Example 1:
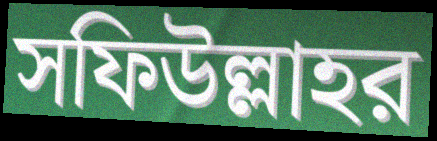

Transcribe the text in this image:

সফিউল্লাহর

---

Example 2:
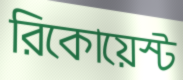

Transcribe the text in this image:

রিকোয়েস্ট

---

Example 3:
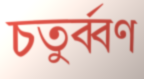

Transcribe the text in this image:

চতুর্ব্বণ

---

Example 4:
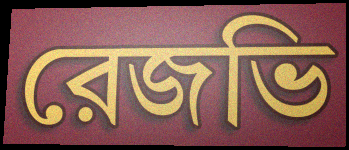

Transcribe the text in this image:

রেজভি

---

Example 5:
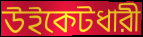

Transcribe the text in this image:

উইকেটধারী